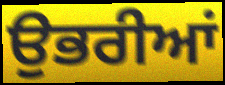
ਉਭਰੀਆਂ